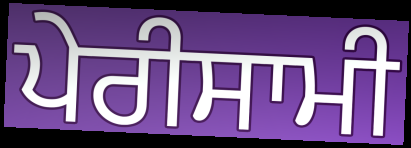
ਪੇਰੀਸਾਮੀ